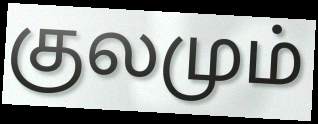
குலமும்